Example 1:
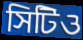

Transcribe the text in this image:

সিটিও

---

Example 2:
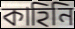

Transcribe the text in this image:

কাহিনি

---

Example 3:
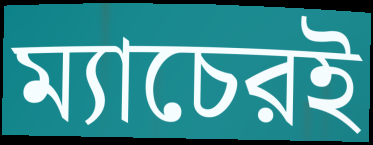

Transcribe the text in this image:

ম্যাচেরই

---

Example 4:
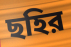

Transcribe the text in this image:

ছহির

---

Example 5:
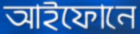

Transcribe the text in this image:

আইফোনে